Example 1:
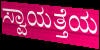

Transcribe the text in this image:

ಸ್ವಾಯತ್ತೆಯ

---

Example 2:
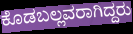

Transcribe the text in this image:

ಕೊಡಬಲ್ಲವರಾಗಿದ್ದರು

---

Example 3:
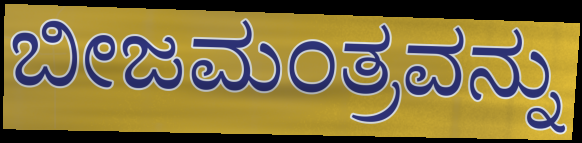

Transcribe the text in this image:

ಬೀಜಮಂತ್ರವನ್ನು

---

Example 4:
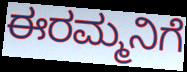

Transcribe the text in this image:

ಈರಮ್ಮನಿಗೆ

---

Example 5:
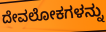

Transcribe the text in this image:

ದೇವಲೋಕಗಳನ್ನು